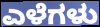
ಎಳೆಗಳು